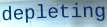
depleting